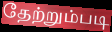
தேற்றும்படி